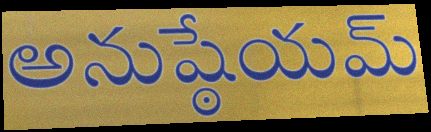
అనుష్ఠేయమ్